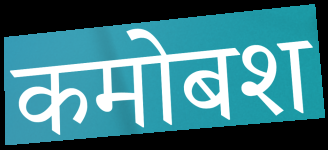
कमोबश